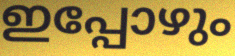
ഇപ്പോഴും